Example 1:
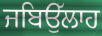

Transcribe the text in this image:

ਜਬਿਉੱਲਾਹ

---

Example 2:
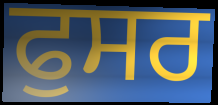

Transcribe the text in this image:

ਫੁਸਰ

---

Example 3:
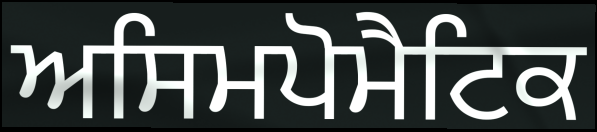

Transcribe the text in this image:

ਅਸਿਮਪੋਮੈਟਿਕ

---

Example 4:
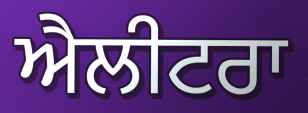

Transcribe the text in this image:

ਐਲੀਟਰਾ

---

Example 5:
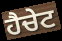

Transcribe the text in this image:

ਹੈਚੇਟ